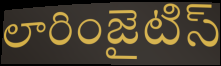
లారింజైటిస్